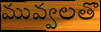
మువ్వలతొ